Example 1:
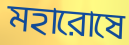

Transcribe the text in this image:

মহারোষে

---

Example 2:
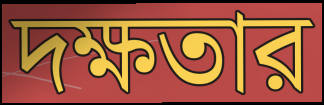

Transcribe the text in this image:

দক্ষতার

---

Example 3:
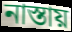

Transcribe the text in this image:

নাস্তায়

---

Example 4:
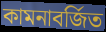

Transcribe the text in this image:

কামনাবর্জিত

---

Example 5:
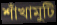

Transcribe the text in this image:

শাঁখামুটি